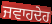
ਜਵਾਹਦੇਹ